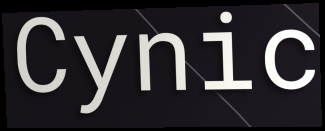
Cynic